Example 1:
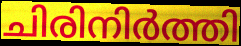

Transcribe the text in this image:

ചിരിനിർത്തി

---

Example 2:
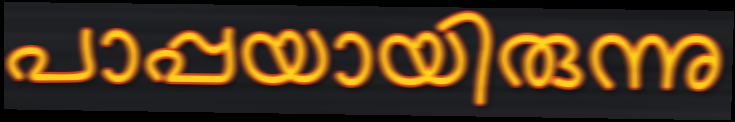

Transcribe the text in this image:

പാപ്പയായിരുന്നു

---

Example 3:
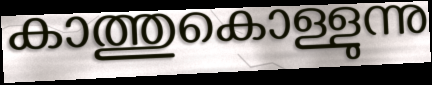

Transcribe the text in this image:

കാത്തുകൊള്ളുന്നു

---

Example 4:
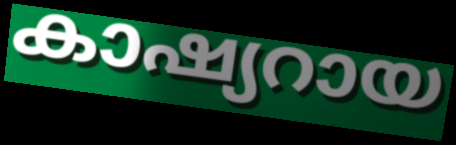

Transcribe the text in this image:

കാഷ്യറായ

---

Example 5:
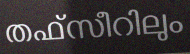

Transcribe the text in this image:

തഫ്സീറിലും